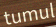
tumul